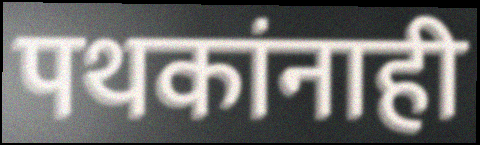
पथकांनाही